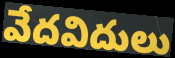
వేదవిదులు